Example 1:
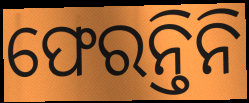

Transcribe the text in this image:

ଫେରନ୍ତିନି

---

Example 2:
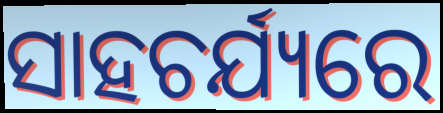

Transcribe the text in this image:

ସାହଚର୍ଯ୍ୟରେ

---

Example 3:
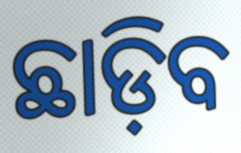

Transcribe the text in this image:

ଛାଡ଼ିବ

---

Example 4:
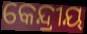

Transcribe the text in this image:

କେନ୍ଦ୍ରୀୟ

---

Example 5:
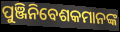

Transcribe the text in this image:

ପୁଞ୍ଜିନିବେଶକମାନଙ୍କ